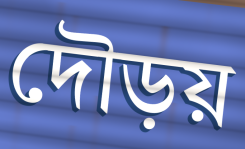
দৌড়য়